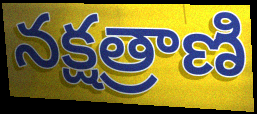
నక్షత్రాణి